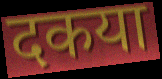
दकया